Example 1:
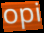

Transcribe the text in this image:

opi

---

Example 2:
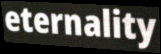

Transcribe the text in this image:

eternality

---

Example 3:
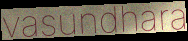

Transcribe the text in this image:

vasundhara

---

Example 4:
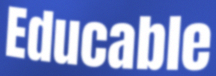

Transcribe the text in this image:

Educable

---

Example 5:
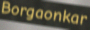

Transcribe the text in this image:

Borgaonkar